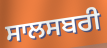
ਸਾਲਸਬਰੀ